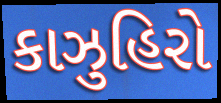
કાઝુહિરો